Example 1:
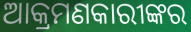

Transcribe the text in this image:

ଆକ୍ରମଣକାରୀଙ୍କର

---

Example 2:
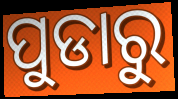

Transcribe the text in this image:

ପୁଡାରୁ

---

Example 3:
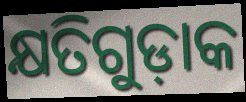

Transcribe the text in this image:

କ୍ଷତିଗୁଡ଼ାକ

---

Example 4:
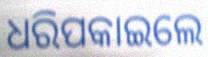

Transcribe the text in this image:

ଧରିପକାଇଲେ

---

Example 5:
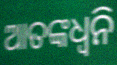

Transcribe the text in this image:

ଆତଙ୍କଧ୍ଵନି